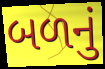
બળનું